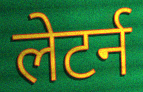
लेटर्न